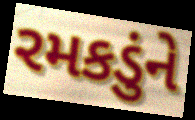
રમકડુંને